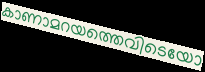
കാണാമറയത്തെവിടെയോ